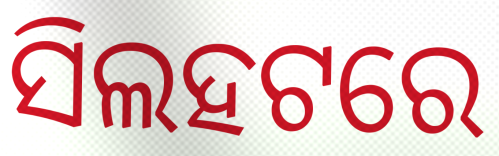
ସିଲହଟରେ